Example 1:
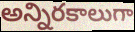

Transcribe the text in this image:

అన్నిరకాలుగా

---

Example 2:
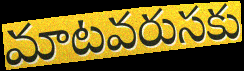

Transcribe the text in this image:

మాటవరుసకు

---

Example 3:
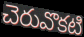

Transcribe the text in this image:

చెరువొకటి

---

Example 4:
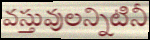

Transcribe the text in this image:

వస్తువులన్నిటినీ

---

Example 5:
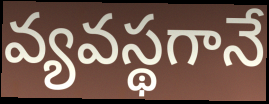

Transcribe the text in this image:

వ్యవస్థగానే